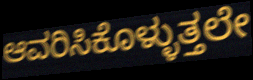
ಆವರಿಸಿಕೊಳ್ಳುತ್ತಲೇ